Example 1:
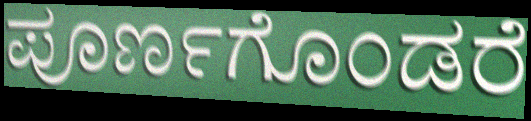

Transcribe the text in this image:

ಪೂರ್ಣಗೊಂಡರೆ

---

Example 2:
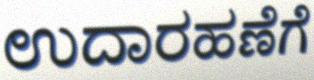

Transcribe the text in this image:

ಉದಾರಹಣೆಗೆ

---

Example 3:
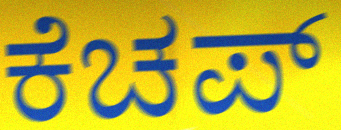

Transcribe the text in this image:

ಕೆಚಪ್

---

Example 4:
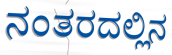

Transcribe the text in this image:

ನಂತರದಲ್ಲಿನ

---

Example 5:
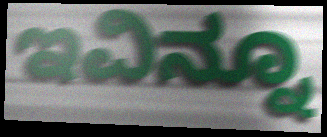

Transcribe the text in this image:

ಇವಿನ್ನೂ